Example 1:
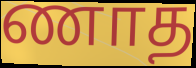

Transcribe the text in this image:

ணாத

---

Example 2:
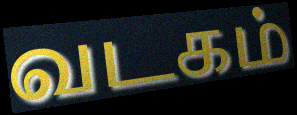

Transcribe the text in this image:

வடகம்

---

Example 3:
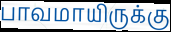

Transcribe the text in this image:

பாவமாயிருக்கு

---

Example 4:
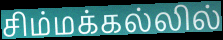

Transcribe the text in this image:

சிம்மக்கல்லில்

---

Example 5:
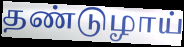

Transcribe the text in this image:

தண்டுழாய்